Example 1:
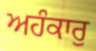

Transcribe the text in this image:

ਅਹੰਕਾਰੁ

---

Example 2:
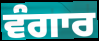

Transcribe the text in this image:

ਵੰਗਾਰ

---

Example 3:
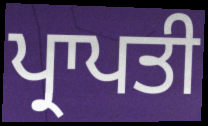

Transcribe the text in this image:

ਪ੍ਰਾਪਤੀ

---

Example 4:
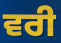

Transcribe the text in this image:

ਵਰੀ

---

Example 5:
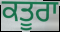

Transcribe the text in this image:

ਕਤੂਰਾ